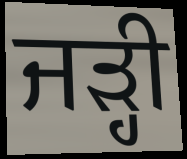
ਜੜ੍ਹੀ